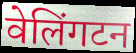
वेलिंगटन